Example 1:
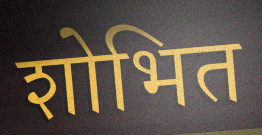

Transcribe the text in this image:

शोभित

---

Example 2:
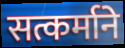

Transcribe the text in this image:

सत्कर्माने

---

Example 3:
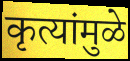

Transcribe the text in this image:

कृत्यांमुळे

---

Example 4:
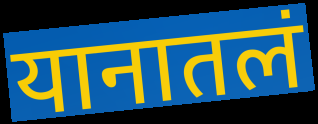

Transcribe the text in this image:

यानातलं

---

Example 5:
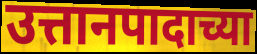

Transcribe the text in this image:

उत्तानपादाच्या